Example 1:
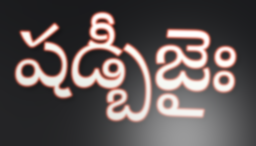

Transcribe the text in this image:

షడ్బీజైః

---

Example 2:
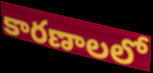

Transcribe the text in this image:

కారణాలలో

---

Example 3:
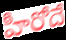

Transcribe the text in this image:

హీరోదే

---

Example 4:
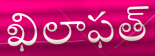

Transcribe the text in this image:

ఖిలాఫత్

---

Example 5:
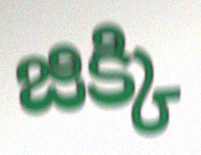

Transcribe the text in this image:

జిక్కి